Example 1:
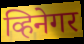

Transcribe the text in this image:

व्हिनेगर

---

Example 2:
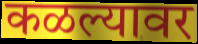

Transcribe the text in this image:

कळल्यावर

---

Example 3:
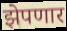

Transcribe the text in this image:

झेपणार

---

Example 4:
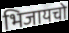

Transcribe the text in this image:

भिजायचो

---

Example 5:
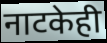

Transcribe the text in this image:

नाटकेही